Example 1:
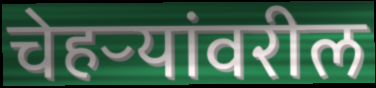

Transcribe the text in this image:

चेहऱ्यांवरील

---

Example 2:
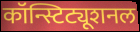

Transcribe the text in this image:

कॉन्स्टिट्यूशनल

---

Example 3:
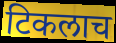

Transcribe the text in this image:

टिकलाच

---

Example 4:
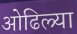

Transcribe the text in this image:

ओढिल्या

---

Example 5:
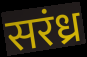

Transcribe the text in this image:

सरंध्र